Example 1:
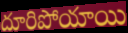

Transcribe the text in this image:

దూరిపోయాయి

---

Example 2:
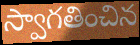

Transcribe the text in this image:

స్వాగతించిన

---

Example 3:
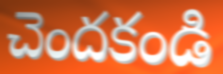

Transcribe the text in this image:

చెందకండి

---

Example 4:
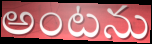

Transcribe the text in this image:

అంటను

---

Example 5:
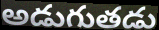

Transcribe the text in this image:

అడుగుతడు